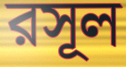
রসূল